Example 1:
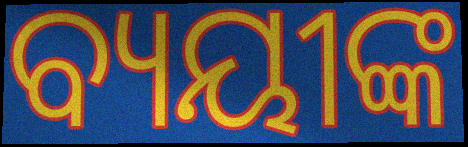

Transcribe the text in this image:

ବ୍ୟୟୀଙ୍କ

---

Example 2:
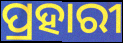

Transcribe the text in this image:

ପ୍ରହାରୀ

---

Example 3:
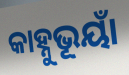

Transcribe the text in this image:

କାହ୍ନୁଭୂୟାଁ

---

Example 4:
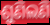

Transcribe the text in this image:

ଶୁଣିଲଣି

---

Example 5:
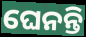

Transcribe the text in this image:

ଘେନନ୍ତି